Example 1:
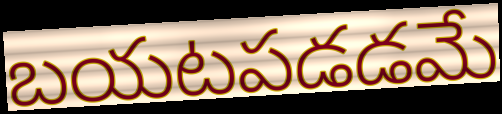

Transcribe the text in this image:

బయటపడడమే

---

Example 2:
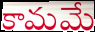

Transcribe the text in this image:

కామమే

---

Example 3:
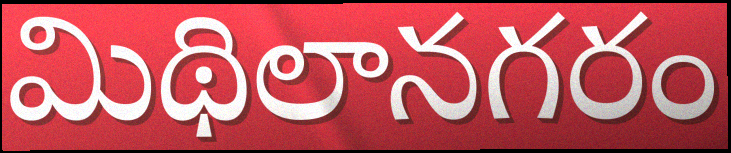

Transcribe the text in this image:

మిథిలానగరం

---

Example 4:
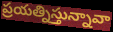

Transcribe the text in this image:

ప్రయత్నిస్తున్నావా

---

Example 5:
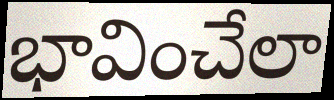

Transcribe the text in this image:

భావించేలా